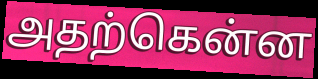
அதற்கென்ன